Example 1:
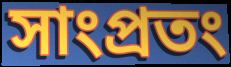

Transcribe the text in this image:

সাংপ্রতং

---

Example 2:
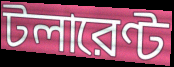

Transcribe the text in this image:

টলারেণ্ট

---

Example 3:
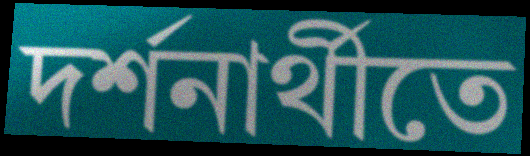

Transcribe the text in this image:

দর্শনার্থীতে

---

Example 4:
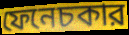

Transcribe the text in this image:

ফেনেচকার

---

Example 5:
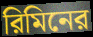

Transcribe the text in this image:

রিমিনের